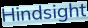
Hindsight